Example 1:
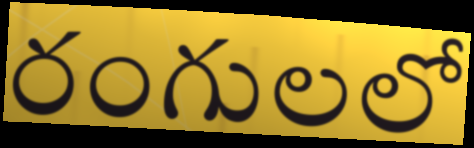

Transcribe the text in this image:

రంగులలో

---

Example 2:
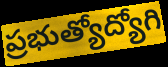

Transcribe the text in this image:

ప్రభుత్యోద్యోగి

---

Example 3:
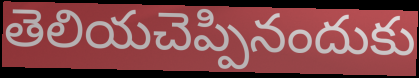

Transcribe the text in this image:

తెలియచెప్పినందుకు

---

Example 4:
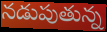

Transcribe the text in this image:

నడుపుతున్న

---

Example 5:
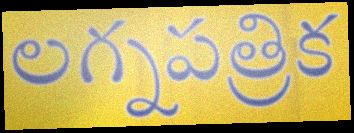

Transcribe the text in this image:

లగ్నపత్రిక